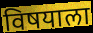
विषयाला